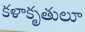
కళాకృతులూ